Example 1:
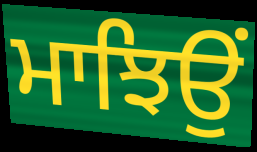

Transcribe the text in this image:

ਮਾਝਿਉਂ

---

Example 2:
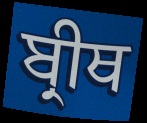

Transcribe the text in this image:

ਬ੍ਰੀਥ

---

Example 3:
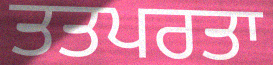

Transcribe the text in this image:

ਤਤਪਰਤਾ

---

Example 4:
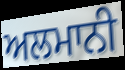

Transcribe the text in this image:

ਅਲਮਾਨੀ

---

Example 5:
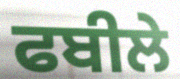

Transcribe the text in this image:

ਫਬੀਲੇ